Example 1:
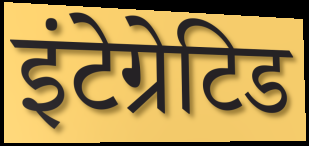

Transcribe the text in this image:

इंटेग्रेटिड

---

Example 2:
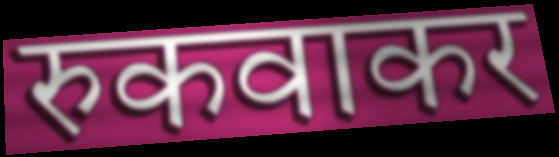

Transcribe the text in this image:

रुकवाकर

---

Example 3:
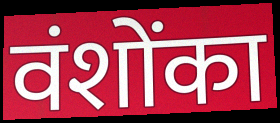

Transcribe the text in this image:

वंशोंका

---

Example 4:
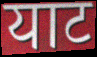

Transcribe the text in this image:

याट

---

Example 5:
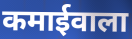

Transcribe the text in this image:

कमाईवाला